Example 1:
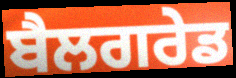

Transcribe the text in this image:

ਬੈਲਗਰੇਡ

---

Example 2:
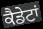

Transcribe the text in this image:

ਕੈਡੇਟਾਂ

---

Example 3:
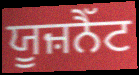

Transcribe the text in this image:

ਯੂਜ਼ਨੈੱਟ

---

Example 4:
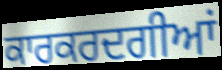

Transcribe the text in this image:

ਕਾਰਕਰਦਗੀਆਂ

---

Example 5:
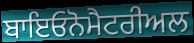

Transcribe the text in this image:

ਬਾਇਓਨੋਮੈਟਰੀਅਲ